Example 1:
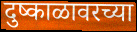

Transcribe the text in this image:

दुष्काळावरच्या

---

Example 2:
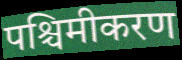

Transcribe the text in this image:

पश्चिमीकरण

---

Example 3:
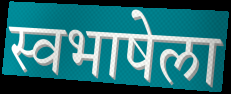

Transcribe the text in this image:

स्वभाषेला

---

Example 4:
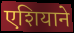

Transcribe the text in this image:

एशियाने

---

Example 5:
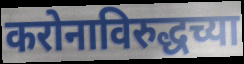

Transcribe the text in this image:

करोनाविरुद्धच्या